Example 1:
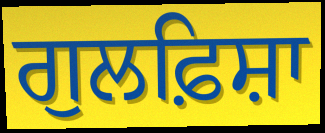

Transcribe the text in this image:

ਗੁਲਫ਼ਿਸ਼ਾ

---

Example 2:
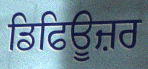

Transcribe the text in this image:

ਡਿਫਿਊਜ਼ਰ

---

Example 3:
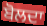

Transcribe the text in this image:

ਬੋਲਦਾ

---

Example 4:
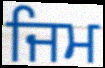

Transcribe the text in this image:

ਜਿਮ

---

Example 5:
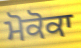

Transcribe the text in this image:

ਮੋਕੋਕਾ